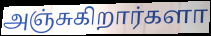
அஞ்சுகிறார்களா